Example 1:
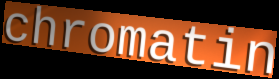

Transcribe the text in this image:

chromatin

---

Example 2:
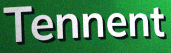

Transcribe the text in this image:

Tennent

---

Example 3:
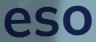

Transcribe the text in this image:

eso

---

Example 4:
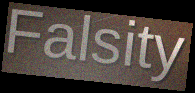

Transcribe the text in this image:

Falsity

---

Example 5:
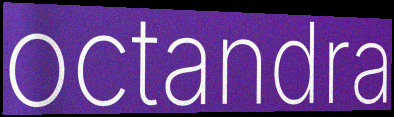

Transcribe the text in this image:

octandra